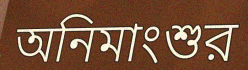
অনিমাংশুর